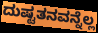
ದುಷ್ಟತನವನ್ನೆಲ್ಲ